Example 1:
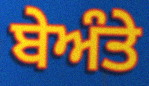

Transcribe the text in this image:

ਬੇਅੰਤੇ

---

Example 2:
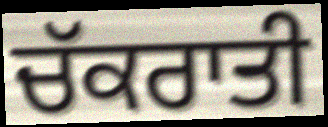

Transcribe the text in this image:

ਚੱਕਰਾਤੀ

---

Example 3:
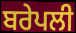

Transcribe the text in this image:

ਬਰੇਪਲੀ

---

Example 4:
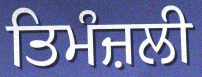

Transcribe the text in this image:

ਤਿਮੰਜ਼ਲੀ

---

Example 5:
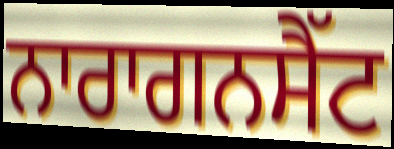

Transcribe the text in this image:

ਨਾਰਾਗਨਸੈੱਟ